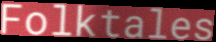
Folktales